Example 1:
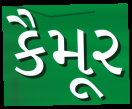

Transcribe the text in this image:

કૈમૂર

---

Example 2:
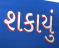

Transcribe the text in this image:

શકાયું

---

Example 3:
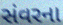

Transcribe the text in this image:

સંવરના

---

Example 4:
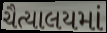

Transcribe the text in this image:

ચૈત્યાલયમાં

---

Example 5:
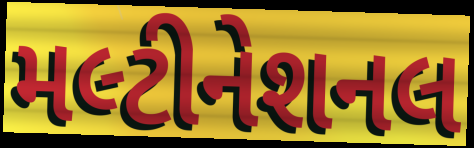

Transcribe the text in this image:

મલ્ટીનેશનલ